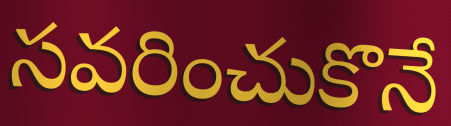
సవరించుకొనే